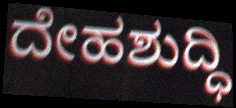
ದೇಹಶುದ್ಧಿ